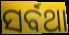
ସର୍ବଥା